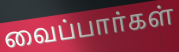
வைப்பார்கள்